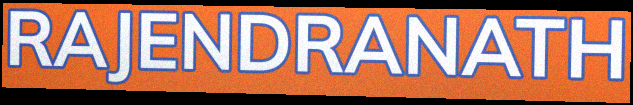
RAJENDRANATH